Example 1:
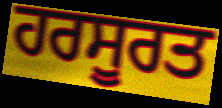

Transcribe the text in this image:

ਹਰਸੂਰਤ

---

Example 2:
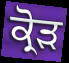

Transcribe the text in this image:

ਕ੍ਰੋੜ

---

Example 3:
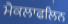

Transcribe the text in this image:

ਮੈਕਲਾਫਲਿਨ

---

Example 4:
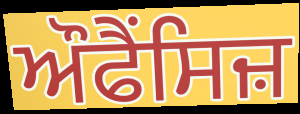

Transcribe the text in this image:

ਔਫੈਂਸਿਜ਼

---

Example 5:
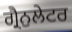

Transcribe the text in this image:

ਗ੍ਰੈਨੁਲੇਟਰ